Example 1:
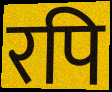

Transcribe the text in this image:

रपि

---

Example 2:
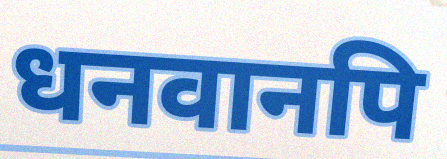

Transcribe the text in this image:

धनवानपि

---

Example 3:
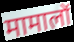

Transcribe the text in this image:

मामालों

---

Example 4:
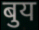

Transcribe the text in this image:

बुय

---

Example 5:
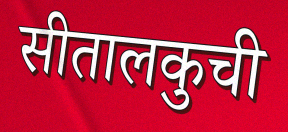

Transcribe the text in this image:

सीतालकुची